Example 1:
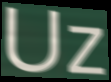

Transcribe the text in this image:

Uz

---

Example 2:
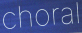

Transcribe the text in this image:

choral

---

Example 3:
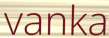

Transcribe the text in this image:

vanka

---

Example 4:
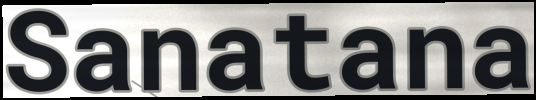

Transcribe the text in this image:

Sanatana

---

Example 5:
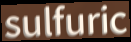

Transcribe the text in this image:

sulfuric